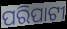
ପରିପାଟୀ